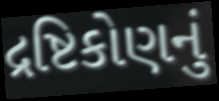
દ્રષ્ટિકોણનું